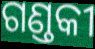
ଗଣ୍ଡକୀ